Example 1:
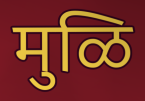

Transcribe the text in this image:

मुळि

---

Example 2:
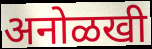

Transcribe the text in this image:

अनोळखी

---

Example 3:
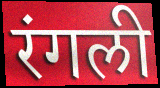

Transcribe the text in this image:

रंगली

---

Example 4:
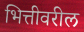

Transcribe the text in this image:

भित्तीवरील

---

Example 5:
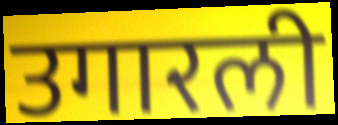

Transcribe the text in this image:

उगारली